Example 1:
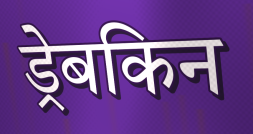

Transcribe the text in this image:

ड्रेबकिन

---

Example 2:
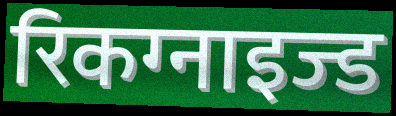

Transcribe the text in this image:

रिकग्नाइज्ड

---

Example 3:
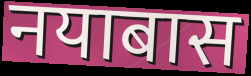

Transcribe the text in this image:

नयाबास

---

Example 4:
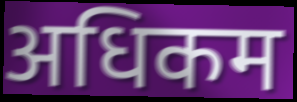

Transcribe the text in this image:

अधिकम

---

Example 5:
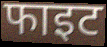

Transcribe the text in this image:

फाइट